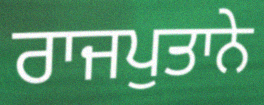
ਰਾਜਪੁਤਾਨੇ